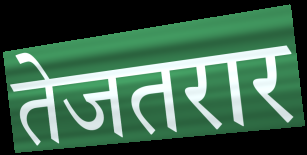
तेजतरार